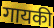
गायकी